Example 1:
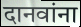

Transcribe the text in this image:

दानवांना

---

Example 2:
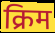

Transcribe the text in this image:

क्रिम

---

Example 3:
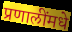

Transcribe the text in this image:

प्रणालींमधे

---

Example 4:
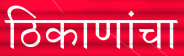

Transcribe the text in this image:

ठिकाणांचा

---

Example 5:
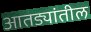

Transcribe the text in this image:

आतड्यांतील